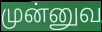
முன்னுவ